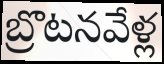
బ్రొటనవేళ్ల